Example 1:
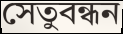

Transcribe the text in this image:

সেতুবন্ধন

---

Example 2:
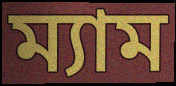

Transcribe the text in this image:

ম্যাম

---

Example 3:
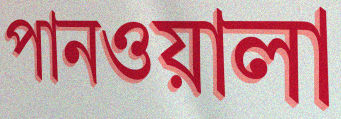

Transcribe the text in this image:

পানওয়ালা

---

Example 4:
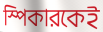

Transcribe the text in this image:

স্পিকারকেই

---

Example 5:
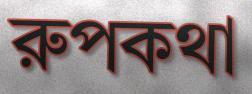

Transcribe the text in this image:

রুপকথা